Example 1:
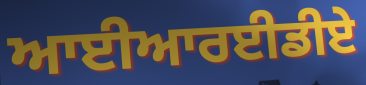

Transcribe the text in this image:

ਆਈਆਰਈਡੀਏ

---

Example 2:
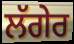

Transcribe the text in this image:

ਲੱਗੇਰ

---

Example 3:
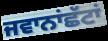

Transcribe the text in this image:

ਜਵਾਨਾਂਛੱਟਾਂ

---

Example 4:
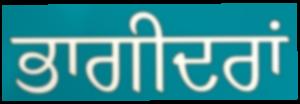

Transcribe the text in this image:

ਭਾਗੀਦਰਾਂ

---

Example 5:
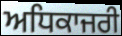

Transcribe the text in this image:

ਅਧਿਕਾਜਰੀ